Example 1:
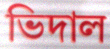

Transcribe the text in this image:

ভিদাল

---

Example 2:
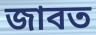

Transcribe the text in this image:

জাবত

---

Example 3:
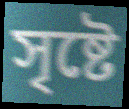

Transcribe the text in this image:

সৃষ্টে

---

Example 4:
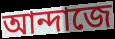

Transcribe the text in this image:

আন্দাজে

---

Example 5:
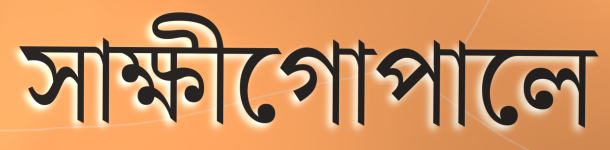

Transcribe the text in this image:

সাক্ষীগোপালে